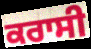
ਕਰਾਸੀ